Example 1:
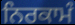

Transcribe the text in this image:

ਨਿਰਕਾਮੰ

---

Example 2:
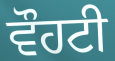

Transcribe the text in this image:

ਵੌਹਟੀ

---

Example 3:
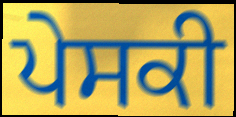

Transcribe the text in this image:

ਪੇਸਕੀ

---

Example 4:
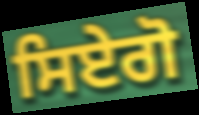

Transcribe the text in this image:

ਸਿਏਗੋ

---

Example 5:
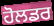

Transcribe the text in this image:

ਹੋਲਡਰ